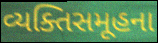
વ્યક્તિસમૂહના